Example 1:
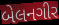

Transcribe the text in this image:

બેલનગીર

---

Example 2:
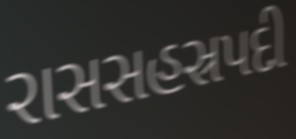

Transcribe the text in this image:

રાસસહસ્રપદી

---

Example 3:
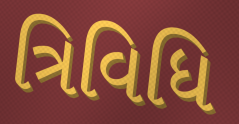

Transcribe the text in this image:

ત્રિવિધિ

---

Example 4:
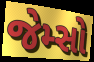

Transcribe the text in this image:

જેમ્સો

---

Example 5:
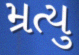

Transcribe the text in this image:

મ્રત્યુ